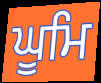
ਘੂਮਿ